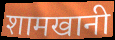
शामखानी